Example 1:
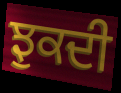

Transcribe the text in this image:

ਝੁਕਦੀ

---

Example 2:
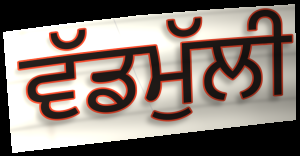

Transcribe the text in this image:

ਵੱਡਮੁੱਲੀ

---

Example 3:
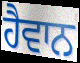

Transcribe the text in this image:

ਹੈਵਾਨ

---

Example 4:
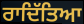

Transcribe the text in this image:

ਰਾਦਿੱਤਿਆ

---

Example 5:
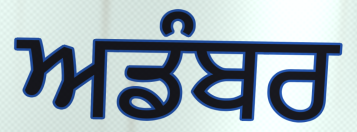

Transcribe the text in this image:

ਅਡੰਬਰ